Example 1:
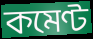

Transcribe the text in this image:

কমেণ্ট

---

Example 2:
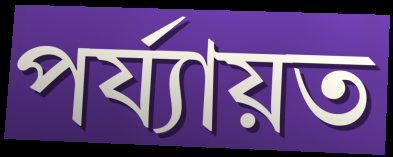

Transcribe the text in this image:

পৰ্য্যায়ত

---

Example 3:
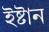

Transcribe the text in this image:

ইষ্টান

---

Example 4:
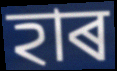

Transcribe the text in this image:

হাৰ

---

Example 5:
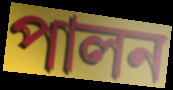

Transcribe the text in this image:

পালন